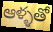
ఆళ్ళతో